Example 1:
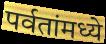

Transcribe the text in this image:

पर्वतांमध्ये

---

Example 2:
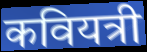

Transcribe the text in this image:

कवियत्री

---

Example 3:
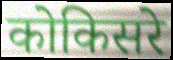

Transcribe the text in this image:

कोकिसरे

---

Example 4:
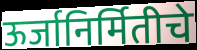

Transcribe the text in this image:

ऊर्जानिर्मितीचे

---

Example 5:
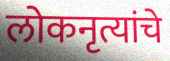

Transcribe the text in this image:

लोकनृत्यांचे